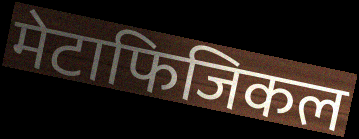
मेटाफिजिकल